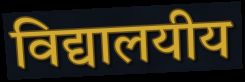
विद्यालयीय